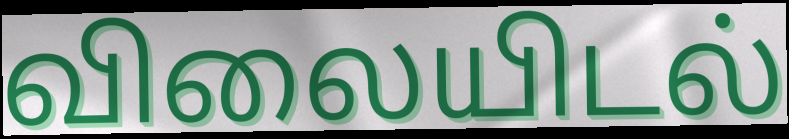
விலையிடல்